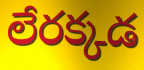
లేరక్కడ